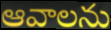
ఆవాలను